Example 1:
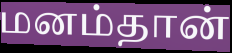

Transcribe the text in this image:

மனம்தான்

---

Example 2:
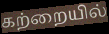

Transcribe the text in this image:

கற்றையில்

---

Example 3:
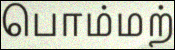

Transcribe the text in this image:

பொம்மற்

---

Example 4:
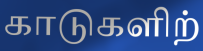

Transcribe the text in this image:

காடுகளிற்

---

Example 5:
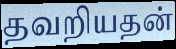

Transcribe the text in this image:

தவறியதன்